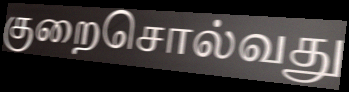
குறைசொல்வது